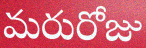
మరురోజు